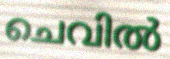
ചെവിൽ